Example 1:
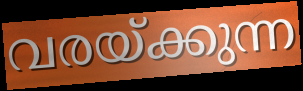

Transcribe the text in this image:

വരയ്ക്കുന്ന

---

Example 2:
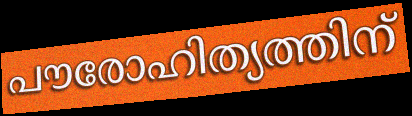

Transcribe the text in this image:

പൗരോഹിത്യത്തിന്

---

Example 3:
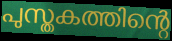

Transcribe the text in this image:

പുസ്തകത്തിന്റെ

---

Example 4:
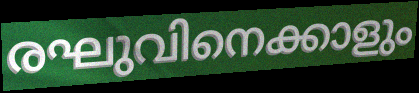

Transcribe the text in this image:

രഘുവിനെക്കാളും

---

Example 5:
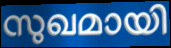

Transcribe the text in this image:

സുഖമായി